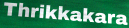
Thrikkakara